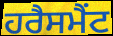
ਹਰੈਸਮੈਂਟ